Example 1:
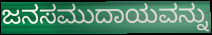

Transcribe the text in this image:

ಜನಸಮುದಾಯವನ್ನು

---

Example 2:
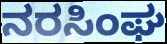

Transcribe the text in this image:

ನರಸಿಂಘ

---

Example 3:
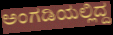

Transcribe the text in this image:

ಅಂಗಡಿಯಲ್ಲಿದ್ದ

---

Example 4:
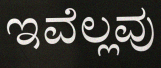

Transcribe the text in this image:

ಇವೆಲ್ಲವು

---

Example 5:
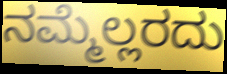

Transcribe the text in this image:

ನಮ್ಮೆಲ್ಲರದು